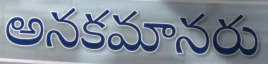
అనకమానరు